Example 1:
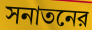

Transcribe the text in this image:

সনাতনের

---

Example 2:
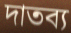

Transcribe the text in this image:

দাতব্য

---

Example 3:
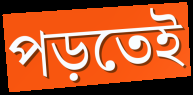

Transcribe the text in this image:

পড়তেই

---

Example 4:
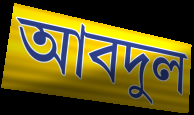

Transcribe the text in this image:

আবদুল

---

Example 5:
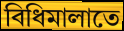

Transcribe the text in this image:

বিধিমালাতে